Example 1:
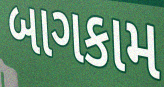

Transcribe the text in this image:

બાગકામ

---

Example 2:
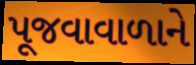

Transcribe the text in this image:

પૂજવાવાળાને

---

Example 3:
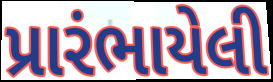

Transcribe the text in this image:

પ્રારંભાયેલી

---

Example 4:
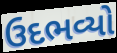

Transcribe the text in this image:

ઉદભવ્યો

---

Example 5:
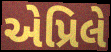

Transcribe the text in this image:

એપ્રિલે